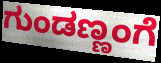
ಗುಂಡಣ್ಣಂಗೆ